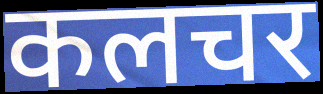
कलचर